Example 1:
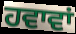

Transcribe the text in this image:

ਹਵਾਵਾਂ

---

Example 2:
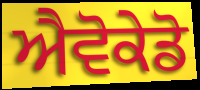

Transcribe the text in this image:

ਐਵੋਕੇਡੋ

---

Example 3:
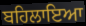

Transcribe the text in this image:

ਬਹਿਲਾਇਆ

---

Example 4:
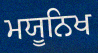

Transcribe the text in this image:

ਮਯੂਨਿਖ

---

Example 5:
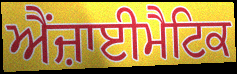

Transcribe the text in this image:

ਐਂਜ਼ਾਈਮੈਟਿਕ